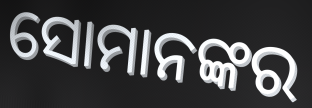
ସୋମାନଙ୍କର